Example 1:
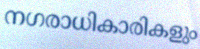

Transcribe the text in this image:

നഗരാധികാരികളും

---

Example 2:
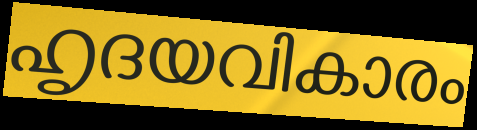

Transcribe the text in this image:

ഹൃദയവികാരം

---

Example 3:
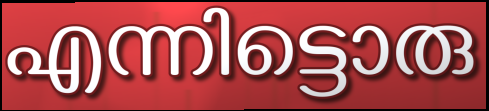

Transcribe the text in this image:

എന്നിട്ടൊരു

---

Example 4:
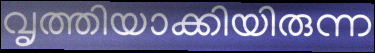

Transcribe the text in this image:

വൃത്തിയാക്കിയിരുന്ന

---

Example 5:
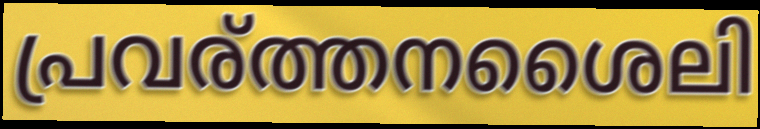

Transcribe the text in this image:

പ്രവര്ത്തനശൈലി